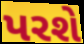
પરશે